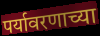
पर्यावरणाच्या